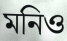
মনিও